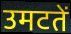
उमटतें